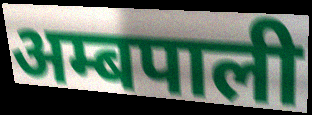
अम्बपाली